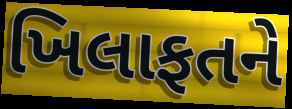
ખિલાફતને